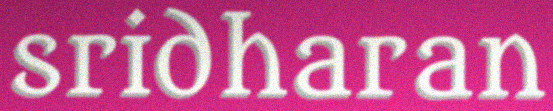
sridharan